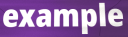
example